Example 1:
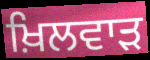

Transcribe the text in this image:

ਖ਼ਿਲਵਾੜ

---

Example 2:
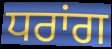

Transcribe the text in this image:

ਧਰਾਂਗ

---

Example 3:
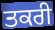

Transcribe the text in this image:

ਤਕਰੀ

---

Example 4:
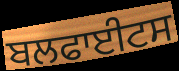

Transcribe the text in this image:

ਬਲਫਾਈਟਸ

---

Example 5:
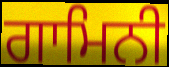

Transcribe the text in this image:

ਗਾਮਿਨੀ